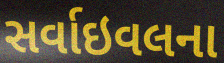
સર્વાઇવલના